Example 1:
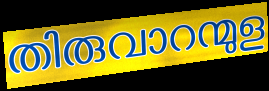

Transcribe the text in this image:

തിരുവാറന്മുള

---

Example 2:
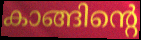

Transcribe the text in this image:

കാങ്ങിന്റെ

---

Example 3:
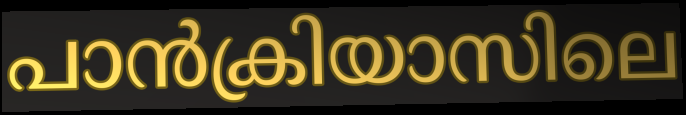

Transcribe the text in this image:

പാൻക്രിയാസിലെ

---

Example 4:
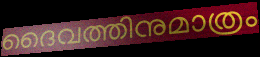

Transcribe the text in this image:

ദൈവത്തിനുമാത്രം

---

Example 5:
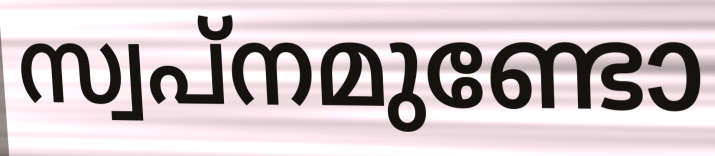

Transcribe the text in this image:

സ്വപ്നമുണ്ടോ